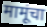
मामूंचा